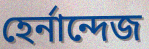
হের্নান্দেজ